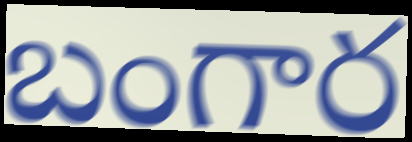
బంగార